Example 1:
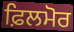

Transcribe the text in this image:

ਫ਼ਿਲਮੋਰ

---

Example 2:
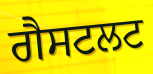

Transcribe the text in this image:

ਗੈਸਟਲਟ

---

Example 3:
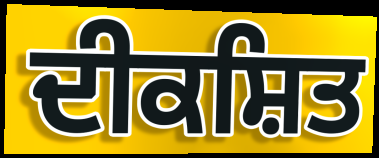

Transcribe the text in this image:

ਦੀਕਸ਼ਿਤ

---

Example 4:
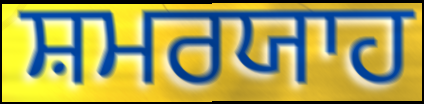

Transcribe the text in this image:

ਸ਼ਮਰਯਾਹ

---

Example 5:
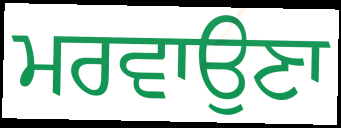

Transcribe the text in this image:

ਮਰਵਾਉਣਾ